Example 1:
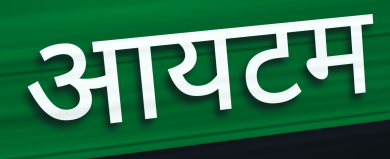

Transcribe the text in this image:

आयटम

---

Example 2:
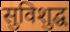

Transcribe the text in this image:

सुविशुद्ध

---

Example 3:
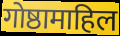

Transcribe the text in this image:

गोष्ठामाहिल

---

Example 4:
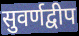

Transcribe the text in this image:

सुवर्णद्वीप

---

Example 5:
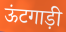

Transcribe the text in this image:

ऊंटगाड़ी